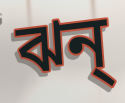
ঝন্